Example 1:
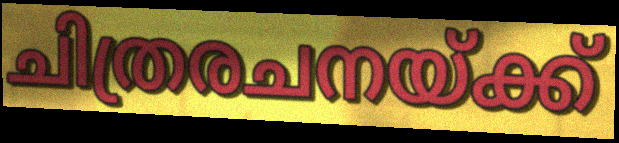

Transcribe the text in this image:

ചിത്രരചനയ്ക്ക്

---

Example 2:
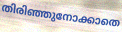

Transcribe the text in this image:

തിരിഞ്ഞുനോക്കാതെ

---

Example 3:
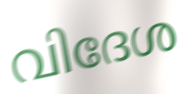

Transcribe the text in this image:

വിദേശ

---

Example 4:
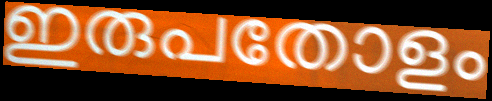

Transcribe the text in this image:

ഇരുപതോളം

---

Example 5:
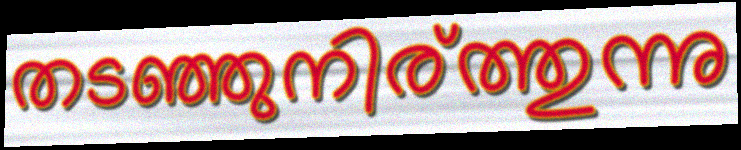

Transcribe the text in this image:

തടഞ്ഞുനിര്ത്തുന്നു